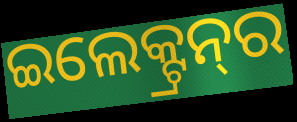
ଇଲେକ୍ଟ୍ରନ୍‌ର